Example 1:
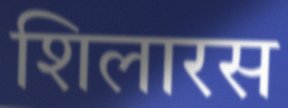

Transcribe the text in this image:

शिलारस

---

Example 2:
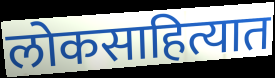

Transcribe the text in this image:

लोकसाहित्यात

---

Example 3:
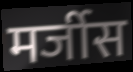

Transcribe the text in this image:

मर्जीस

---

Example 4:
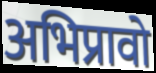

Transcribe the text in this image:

अभिप्रावो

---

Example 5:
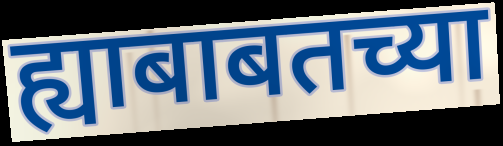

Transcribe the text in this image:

ह्याबाबतच्या